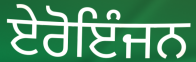
ਏਰੋਇੰਜਨ